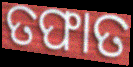
ତଫାତ